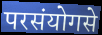
परसंयोगसे